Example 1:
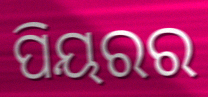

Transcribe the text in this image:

ପିୟରର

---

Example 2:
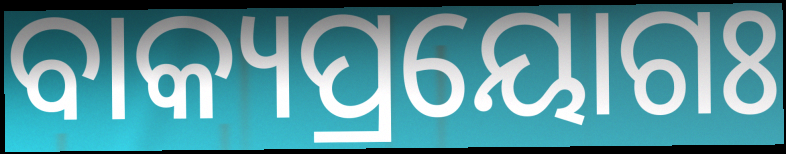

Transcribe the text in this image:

ବାକ୍ୟପ୍ରୟୋଗଃ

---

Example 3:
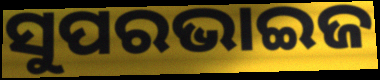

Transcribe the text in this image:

ସୁପରଭାଇଜ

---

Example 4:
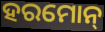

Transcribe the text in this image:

ହରମୋନ୍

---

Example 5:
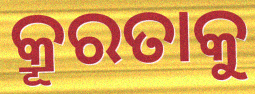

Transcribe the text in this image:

କ୍ରୂରତାକୁ